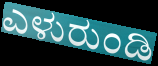
ಎಳುರುಂಡಿ